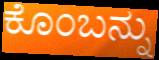
ಕೊಂಬನ್ನು